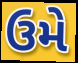
ઉમે